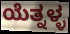
ಯೆತ್ನಳ್ಳ